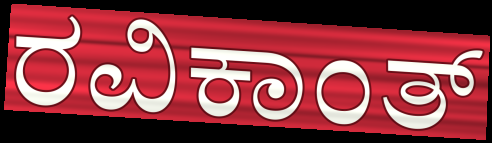
ರವಿಕಾಂತ್